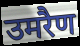
उमरैण